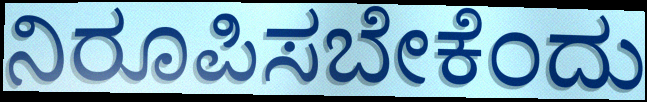
ನಿರೂಪಿಸಬೇಕೆಂದು